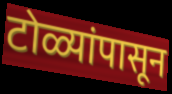
टोळ्यांपासून